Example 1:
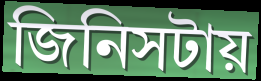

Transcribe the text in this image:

জিনিসটায়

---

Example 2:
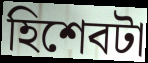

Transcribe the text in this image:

হিশেবটা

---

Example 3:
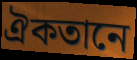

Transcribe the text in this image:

ঐকতানে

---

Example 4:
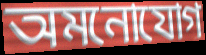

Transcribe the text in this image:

অমনোযোগ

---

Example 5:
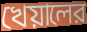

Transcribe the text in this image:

খেয়ালের